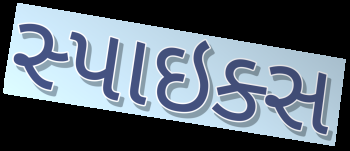
સ્પાઇક્સ